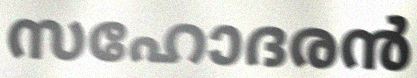
സഹോദരൻ